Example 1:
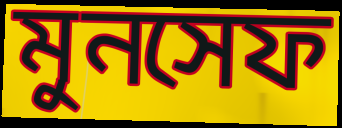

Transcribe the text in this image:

মুনসেফ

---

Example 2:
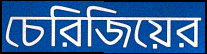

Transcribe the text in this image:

চেরিজিয়ের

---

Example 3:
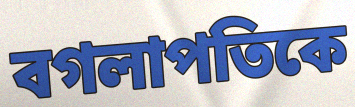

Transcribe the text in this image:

বগলাপতিকে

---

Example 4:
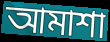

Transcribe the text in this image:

আমাশা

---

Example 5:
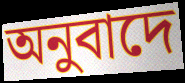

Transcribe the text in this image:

অনুবাদে